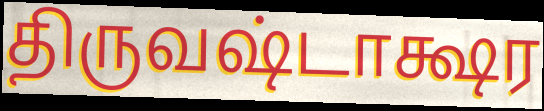
திருவஷ்டாக்ஷர